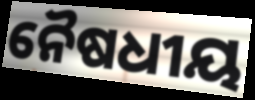
ନୈଷଧୀୟ